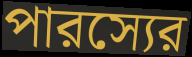
পারস্যের